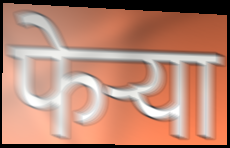
फेर्‍या